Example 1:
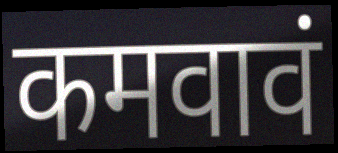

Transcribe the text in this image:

कमवावं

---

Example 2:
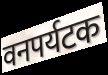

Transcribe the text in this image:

वनपर्यटक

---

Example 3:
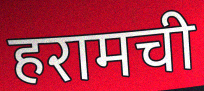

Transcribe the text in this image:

हरामची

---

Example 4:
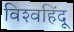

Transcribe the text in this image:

विश्वहिंदू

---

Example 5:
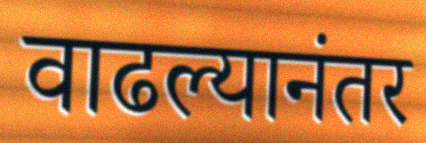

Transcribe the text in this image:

वाढल्यानंतर